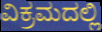
ವಿಕ್ರಮದಲ್ಲಿ